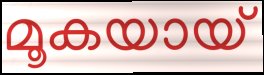
മൂകയായ്